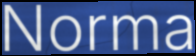
Norma